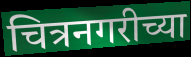
चित्रनगरीच्या